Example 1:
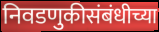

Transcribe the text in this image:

निवडणुकीसंबंधीच्या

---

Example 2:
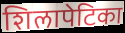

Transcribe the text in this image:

शिलापेटिका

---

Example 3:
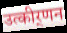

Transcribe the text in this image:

उत्कीर्णन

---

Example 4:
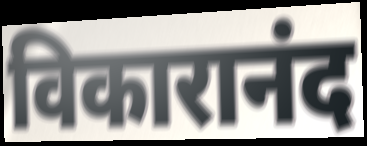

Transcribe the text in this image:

विकारानंद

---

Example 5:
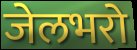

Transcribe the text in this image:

जेलभरो